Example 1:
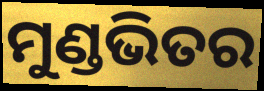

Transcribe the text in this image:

ମୁଣ୍ଡଭିତର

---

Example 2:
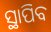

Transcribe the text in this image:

ସ୍ଥାପିବ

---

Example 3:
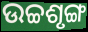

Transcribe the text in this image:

ଉଚ୍ଚଶୃଙ୍ଗ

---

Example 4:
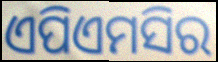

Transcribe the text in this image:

ଏପିଏମସିର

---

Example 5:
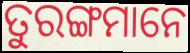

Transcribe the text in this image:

ତୁରଙ୍ଗମାନେ